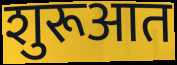
शुरूआत